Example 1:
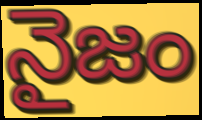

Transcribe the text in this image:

నైజం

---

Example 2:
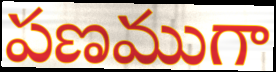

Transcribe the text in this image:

పణముగా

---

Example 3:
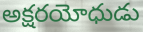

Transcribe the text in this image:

అక్షరయోధుడు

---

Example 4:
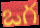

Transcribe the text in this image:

ఒగ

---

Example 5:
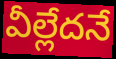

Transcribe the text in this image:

వీల్లేదనే